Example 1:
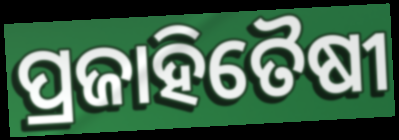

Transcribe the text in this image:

ପ୍ରଜାହିତୈଷୀ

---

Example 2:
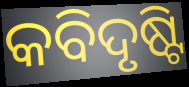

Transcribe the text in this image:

କବିଦୃଷ୍ଟି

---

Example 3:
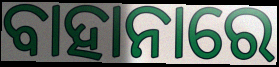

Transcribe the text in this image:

ବାହାନାରେ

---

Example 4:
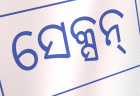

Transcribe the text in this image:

ସେକ୍ସନ୍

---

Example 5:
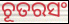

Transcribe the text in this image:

ଚୂତରସଂ